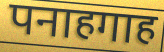
पनाहगाह